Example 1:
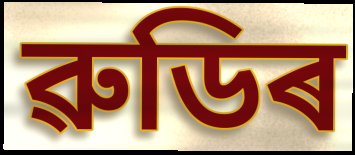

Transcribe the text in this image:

ৱুডিৰ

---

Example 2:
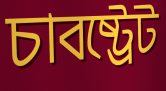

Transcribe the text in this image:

চাবষ্ট্ৰেট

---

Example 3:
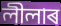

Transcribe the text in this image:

লীলাৰ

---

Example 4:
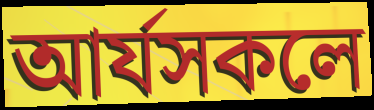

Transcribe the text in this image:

আৰ্যসকলে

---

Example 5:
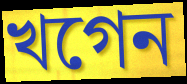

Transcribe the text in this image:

খগেন